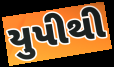
યુપીથી